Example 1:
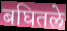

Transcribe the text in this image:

बघितले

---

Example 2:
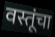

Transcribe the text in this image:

वस्तूंचा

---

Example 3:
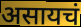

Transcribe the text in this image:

असायचं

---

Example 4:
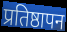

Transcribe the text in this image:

प्रतिष्ठापन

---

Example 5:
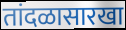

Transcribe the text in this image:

तांदळासारखा